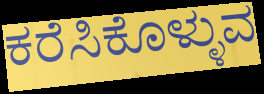
ಕರೆಸಿಕೊಳ್ಳುವ